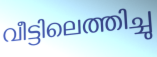
വീട്ടിലെത്തിച്ചു